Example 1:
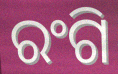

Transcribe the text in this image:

ରଂଗି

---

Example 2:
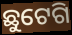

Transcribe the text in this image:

ଛୁଟେଗି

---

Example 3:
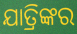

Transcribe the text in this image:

ଯାତ୍ରିଙ୍କର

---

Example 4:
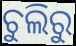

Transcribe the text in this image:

ଚୁଲିରୁ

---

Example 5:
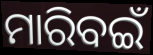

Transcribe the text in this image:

ମାରିବଇଁ